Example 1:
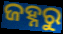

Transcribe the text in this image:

ଜହ୍ନରୁ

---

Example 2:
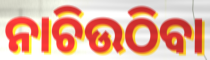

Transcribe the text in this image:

ନାଚିଉଠିବା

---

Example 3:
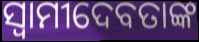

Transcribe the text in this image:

ସ୍ୱାମୀଦେବତାଙ୍କ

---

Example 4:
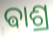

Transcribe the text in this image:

ଵାଶ୍ର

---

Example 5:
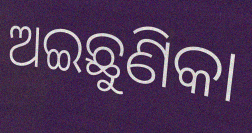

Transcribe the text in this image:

ଅଇଛୁଣିକା